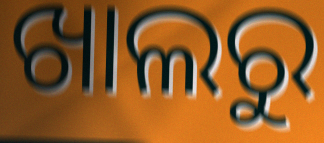
ଖାଲରୁ